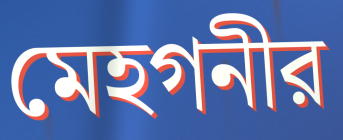
মেহগনীর